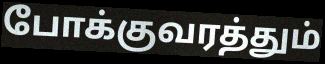
போக்குவரத்தும்